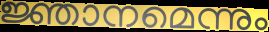
ജ്ഞാനമെന്നും